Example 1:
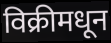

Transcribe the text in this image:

विक्रीमधून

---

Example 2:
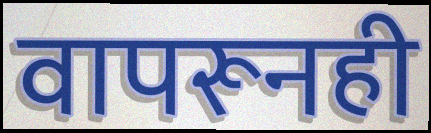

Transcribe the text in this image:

वापरूनही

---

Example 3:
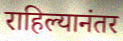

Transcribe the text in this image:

राहिल्यानंतर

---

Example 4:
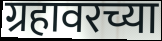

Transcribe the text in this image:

ग्रहावरच्या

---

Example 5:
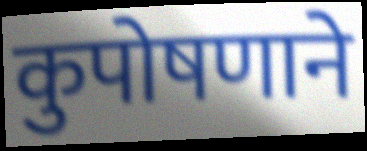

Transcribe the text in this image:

कुपोषणाने